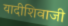
यादीशिवाजी